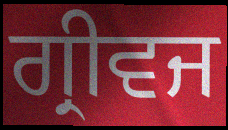
ਗ੍ਰੀਵਜ